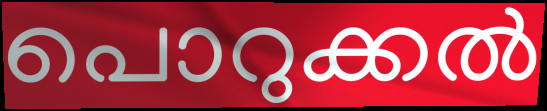
പൊറുക്കൽ